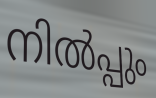
നിൽപ്പും